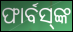
ଫାର୍ବସ୍‌ଙ୍କ